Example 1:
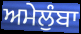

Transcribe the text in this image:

ਅਮੇਲੁੰਬਾ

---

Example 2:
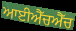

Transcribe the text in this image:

ਆਈਐੱਚਐੱਚ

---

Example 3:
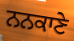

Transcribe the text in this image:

ਨਨਕਾਣੇ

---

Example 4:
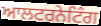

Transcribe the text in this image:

ਆਲਟਰਨੇਟਿੰਗ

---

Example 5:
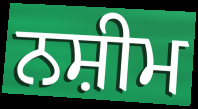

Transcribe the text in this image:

ਨਸ਼ੀਮ